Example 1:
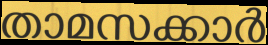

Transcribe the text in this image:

താമസക്കാർ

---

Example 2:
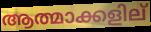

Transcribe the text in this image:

ആത്മാക്കളില്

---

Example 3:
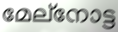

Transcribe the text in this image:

മേല്നോട്ട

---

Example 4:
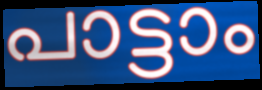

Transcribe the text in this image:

പാട്ടാം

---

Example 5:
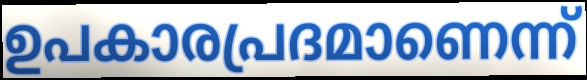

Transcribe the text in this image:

ഉപകാരപ്രദമാണെന്ന്